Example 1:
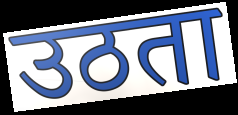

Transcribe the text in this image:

उठता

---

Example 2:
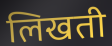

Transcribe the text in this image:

लिखती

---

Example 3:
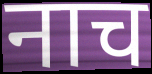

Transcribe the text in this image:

नाच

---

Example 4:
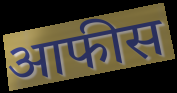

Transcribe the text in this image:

आफीस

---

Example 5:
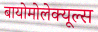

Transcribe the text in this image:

बायोमोलेक्यूल्स